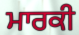
ਮਾਰਕੀ